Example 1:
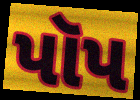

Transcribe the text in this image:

પૉપ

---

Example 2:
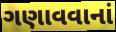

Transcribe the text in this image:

ગણાવવાનાં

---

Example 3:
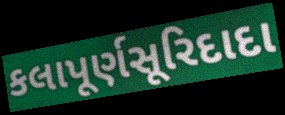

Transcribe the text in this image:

કલાપૂર્ણસૂરિદાદા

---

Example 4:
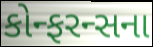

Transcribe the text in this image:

કોન્ફરન્સના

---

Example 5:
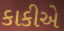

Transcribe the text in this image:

કાકીએ